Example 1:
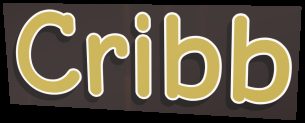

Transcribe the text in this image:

Cribb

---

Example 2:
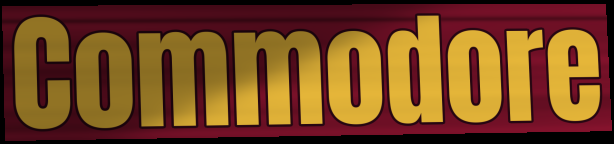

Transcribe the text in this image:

Commodore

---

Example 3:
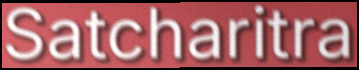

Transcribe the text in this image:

Satcharitra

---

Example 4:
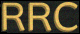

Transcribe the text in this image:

RRC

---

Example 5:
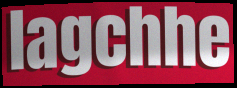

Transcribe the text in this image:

lagchhe